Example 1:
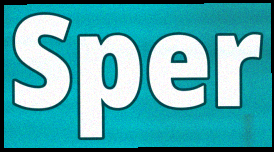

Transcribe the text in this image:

Sper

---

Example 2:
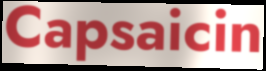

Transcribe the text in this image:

Capsaicin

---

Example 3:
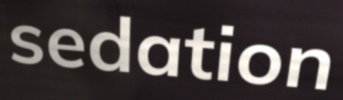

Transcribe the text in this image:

sedation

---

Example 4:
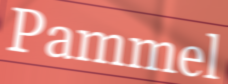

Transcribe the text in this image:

Pammel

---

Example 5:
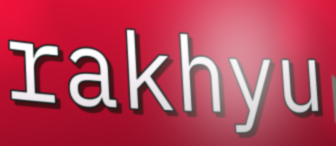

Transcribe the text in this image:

rakhyu